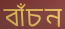
বাঁচন